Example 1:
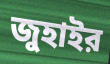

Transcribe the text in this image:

জুহাইর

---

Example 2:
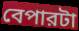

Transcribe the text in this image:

বেপারটা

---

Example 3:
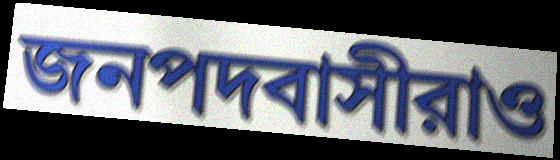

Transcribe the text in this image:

জনপদবাসীরাও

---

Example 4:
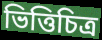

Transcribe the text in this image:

ভিত্তিচিত্র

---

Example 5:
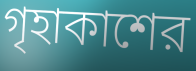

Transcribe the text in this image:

গৃহাকাশের